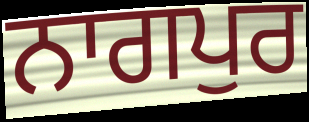
ਨਾਗਪੁਰ